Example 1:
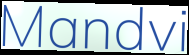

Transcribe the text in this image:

Mandvi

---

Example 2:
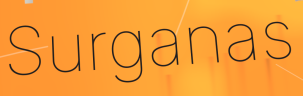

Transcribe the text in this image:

Surganas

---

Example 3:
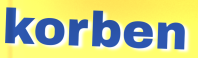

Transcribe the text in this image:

korben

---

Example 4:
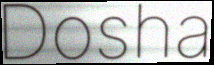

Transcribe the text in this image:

Dosha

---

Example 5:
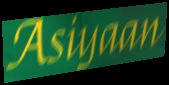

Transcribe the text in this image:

Asiyaan